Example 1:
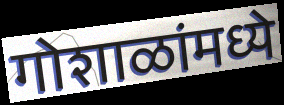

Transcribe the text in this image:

गोशाळांमध्ये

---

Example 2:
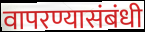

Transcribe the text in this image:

वापरण्यासंबंधी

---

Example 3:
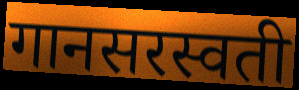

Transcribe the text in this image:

गानसरस्वती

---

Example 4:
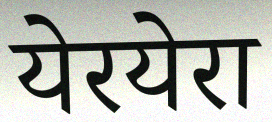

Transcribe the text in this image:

येरयेरा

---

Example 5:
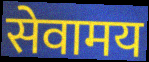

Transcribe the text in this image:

सेवामय